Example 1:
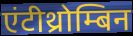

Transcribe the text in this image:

एंटीथ्रोम्बिन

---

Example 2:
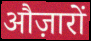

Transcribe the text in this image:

औज़ारों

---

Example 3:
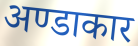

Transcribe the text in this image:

अण्डाकार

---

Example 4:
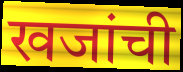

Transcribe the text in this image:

खजांची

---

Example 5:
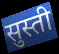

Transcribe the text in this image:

सुस्‍ती